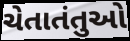
ચેતાતંતુઓ